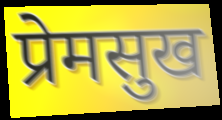
प्रेमसुख